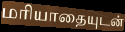
மரியாதையுடன்